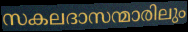
സകലദാസന്മാരിലും